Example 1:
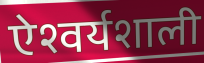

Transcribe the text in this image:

ऐश्वर्यशाली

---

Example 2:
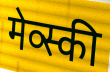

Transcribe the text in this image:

मेव्स्की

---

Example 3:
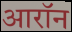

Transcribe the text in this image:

आरॉन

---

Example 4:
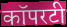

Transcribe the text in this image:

कॉपरटी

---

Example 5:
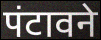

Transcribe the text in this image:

पंटावने